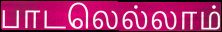
பாடலெல்லாம்